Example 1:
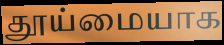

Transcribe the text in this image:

தூய்மையாக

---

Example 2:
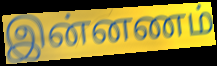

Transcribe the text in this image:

இன்னணம்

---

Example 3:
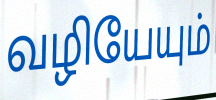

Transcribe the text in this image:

வழியேயும்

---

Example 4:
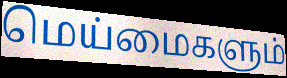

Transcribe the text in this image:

மெய்மைகளும்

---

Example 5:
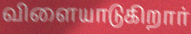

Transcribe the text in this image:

விளையாடுகிறார்